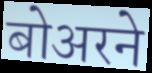
बोअरने